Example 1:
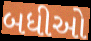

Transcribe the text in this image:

બધીઓ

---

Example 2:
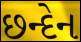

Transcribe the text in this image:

છન્દેન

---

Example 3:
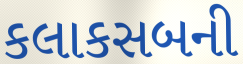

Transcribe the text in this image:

કલાકસબની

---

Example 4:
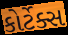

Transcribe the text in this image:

કોર્ટેક્સ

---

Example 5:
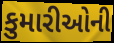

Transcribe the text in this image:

કુમારીઓની